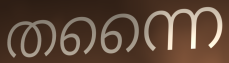
തന്നൈ